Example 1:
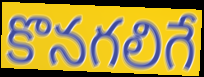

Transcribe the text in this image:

కొనగలిగే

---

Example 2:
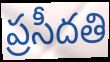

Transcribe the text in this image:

ప్రసీదతి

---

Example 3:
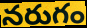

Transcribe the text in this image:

నరుగం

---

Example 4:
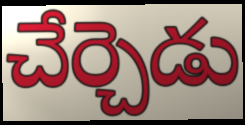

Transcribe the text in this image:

చేర్చెడు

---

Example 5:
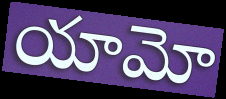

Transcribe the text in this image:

యామో